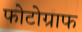
फोटोग्राफ